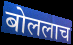
बोललाच